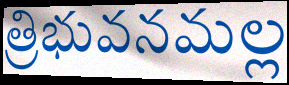
త్రిభువనమల్ల